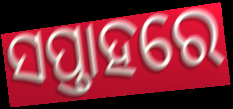
ସପ୍ତାହରେ